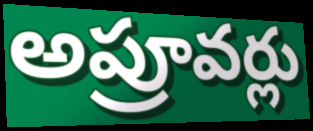
అప్రూవర్లు